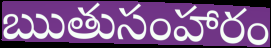
ఋతుసంహారం